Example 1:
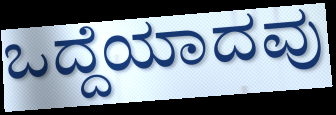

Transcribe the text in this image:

ಒದ್ದೆಯಾದವು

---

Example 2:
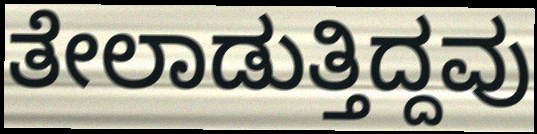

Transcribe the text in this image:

ತೇಲಾಡುತ್ತಿದ್ದವು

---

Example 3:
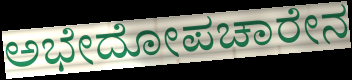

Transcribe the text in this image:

ಅಭೇದೋಪಚಾರೇನ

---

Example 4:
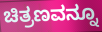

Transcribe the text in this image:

ಚಿತ್ರಣವನ್ನೂ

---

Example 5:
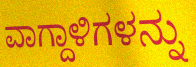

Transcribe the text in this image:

ವಾಗ್ದಾಳಿಗಳನ್ನು